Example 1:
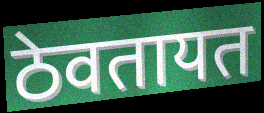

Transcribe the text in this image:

ठेवतायत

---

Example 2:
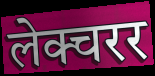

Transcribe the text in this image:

लेक्चरर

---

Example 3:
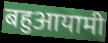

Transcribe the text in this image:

बहुआयामी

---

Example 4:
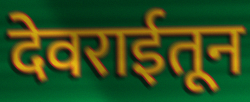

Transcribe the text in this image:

देवराईतून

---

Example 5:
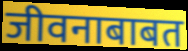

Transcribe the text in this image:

जीवनाबाबत